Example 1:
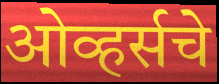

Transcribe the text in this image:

ओव्हर्सचे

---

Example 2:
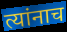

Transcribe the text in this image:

त्यांनाच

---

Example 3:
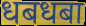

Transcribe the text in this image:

धबधबा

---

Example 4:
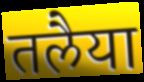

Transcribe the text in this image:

तलैया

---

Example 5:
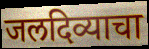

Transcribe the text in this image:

जलदिव्याचा